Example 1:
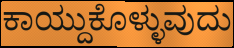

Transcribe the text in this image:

ಕಾಯ್ದುಕೊಳ್ಳುವುದು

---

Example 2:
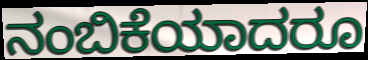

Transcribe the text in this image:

ನಂಬಿಕೆಯಾದರೂ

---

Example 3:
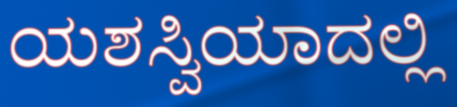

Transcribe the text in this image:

ಯಶಸ್ವಿಯಾದಲ್ಲಿ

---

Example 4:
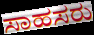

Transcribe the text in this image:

ಸಾಹಸರು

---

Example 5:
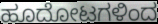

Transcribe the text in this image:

ಹೂದೋಟಗಳಿಂದ